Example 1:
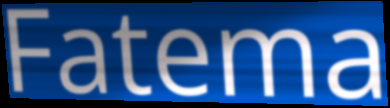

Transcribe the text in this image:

Fatema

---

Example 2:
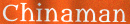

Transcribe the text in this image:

Chinaman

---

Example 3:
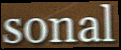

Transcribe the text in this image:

sonal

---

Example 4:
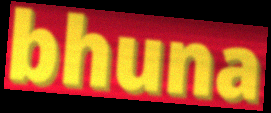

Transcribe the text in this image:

bhuna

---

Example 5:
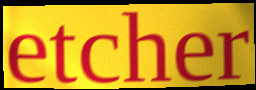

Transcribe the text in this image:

etcher